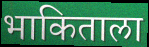
भाकिताला